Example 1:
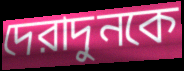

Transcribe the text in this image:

দেরাদুনকে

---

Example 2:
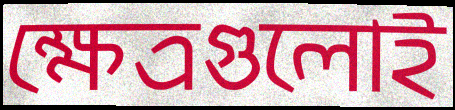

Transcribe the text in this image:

ক্ষেত্রগুলোই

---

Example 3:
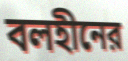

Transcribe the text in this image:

বলহীনের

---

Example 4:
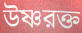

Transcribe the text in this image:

উষ্ণরক্ত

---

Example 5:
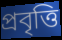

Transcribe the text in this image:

প্রবৃত্তি